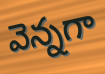
వెన్నగా